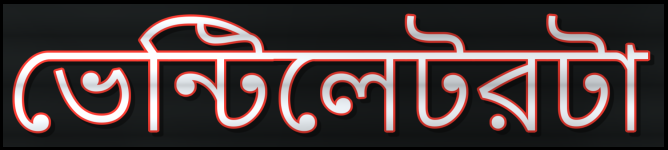
ভেন্টিলেটরটা